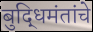
बुद्धिमंतांचे